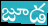
జూడ